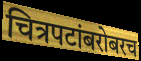
चित्रपटांबरोबरच